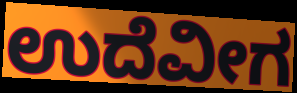
ಉದೆವೀಗ